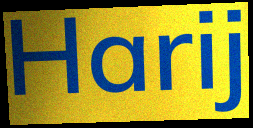
Harij